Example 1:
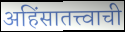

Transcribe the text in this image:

अहिंसातत्त्वाची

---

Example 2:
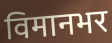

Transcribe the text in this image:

विमानभर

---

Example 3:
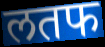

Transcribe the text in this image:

लतफ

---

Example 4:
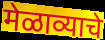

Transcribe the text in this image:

मेळाव्याचे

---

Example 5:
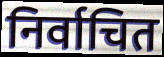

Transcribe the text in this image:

निर्वाचित